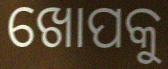
ଖୋପକୁ